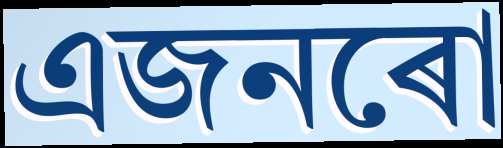
এজনৰো